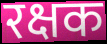
रक्षक